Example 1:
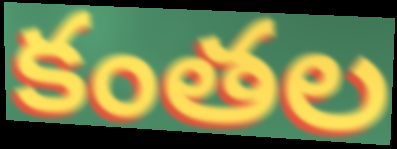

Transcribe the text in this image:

కంతల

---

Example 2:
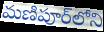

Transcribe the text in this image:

మణిపూర్‌లోని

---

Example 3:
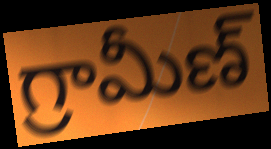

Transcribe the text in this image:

గ్రామీణ్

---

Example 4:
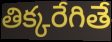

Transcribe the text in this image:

తిక్కరేగితే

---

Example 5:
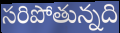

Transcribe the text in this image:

సరిపోతున్నది